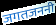
जगतजननी